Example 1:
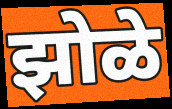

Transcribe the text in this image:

झोळे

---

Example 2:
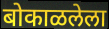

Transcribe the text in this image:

बोकाळलेला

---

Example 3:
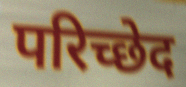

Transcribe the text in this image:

परिच्छेद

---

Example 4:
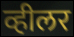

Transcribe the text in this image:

व्हीलर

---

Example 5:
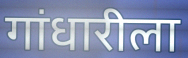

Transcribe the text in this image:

गांधारीला